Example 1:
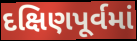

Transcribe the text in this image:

દક્ષિણપૂર્વમાં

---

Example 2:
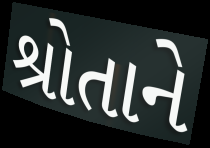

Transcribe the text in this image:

શ્રોતાને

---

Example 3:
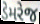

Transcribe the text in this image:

ડેમરેજ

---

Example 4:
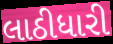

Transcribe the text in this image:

લાઠીધારી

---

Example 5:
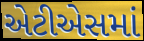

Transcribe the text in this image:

એટીએસમાં